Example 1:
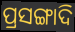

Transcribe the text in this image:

ପ୍ରସଙ୍ଗାଦି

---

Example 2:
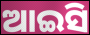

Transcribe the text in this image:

ଆଇସି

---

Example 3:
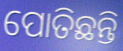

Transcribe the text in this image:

ପୋତିଛନ୍ତି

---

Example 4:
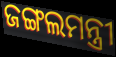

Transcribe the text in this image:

ଜଙ୍ଗଲମନ୍ତ୍ରୀ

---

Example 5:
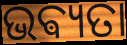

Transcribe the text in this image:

ଭଵ୍ୟତା